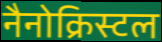
नैनोक्रिस्टल